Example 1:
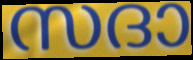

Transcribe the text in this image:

സദാ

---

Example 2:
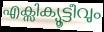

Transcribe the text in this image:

എക്സിക്യൂട്ടീവും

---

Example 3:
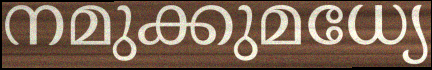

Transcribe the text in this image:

നമുക്കുമധ്യേ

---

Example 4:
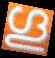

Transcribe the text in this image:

ഗൂ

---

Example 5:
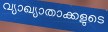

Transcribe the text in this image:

വ്യാഖ്യാതാക്കളുടെ